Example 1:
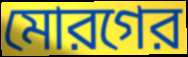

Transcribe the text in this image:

মোরগের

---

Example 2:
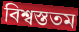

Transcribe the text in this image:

বিশ্বস্ততম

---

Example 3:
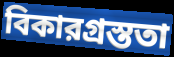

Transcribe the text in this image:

বিকারগ্রস্ততা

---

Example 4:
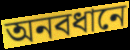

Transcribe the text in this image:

অনবধানে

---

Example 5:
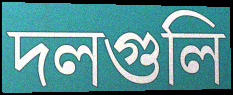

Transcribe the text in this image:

দলগুলি